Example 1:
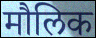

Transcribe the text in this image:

मौलिक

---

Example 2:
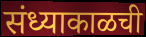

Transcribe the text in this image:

संध्याकाळची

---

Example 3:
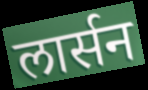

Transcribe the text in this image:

लार्सन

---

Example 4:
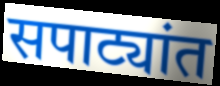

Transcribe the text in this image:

सपाट्यांत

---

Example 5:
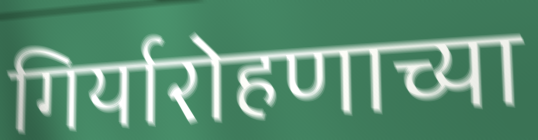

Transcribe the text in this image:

गिर्यारोहणाच्या